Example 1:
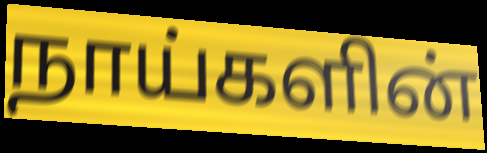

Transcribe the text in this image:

நாய்களின்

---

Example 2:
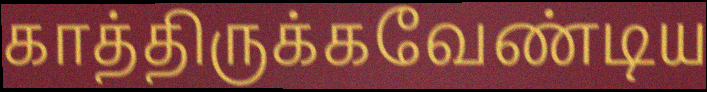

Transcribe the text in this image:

காத்திருக்கவேண்டிய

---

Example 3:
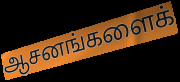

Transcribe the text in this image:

ஆசனங்களைக்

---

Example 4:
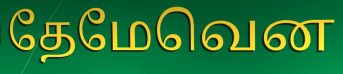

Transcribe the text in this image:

தேமேவென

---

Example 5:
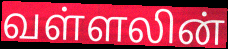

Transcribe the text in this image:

வள்ளலின்